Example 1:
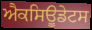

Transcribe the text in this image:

ਐਕਸਿਊਡੇਟਸ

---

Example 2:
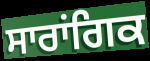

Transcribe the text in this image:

ਸਾਰਾਂਗਿਕ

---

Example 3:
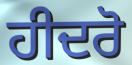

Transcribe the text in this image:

ਹੀਦਰੋ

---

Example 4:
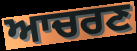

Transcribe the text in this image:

ਆਚਰਣ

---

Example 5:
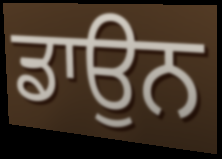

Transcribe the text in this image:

ਡਾਉਨ